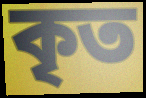
কৃত